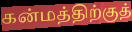
கன்மத்திற்குத்